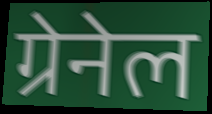
ग्रेनेल